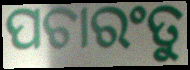
ପଚାରଂତୁ